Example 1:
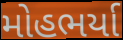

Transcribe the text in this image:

મોહભર્યા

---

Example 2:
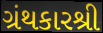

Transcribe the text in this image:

ગ્રંથકારશ્રી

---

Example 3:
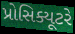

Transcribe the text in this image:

પ્રોસિક્યૂટરે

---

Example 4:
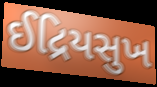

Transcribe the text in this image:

ઈદ્રિયસુખ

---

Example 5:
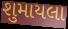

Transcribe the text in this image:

શુમાયલા